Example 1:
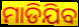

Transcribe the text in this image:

ମାଡିଯିବ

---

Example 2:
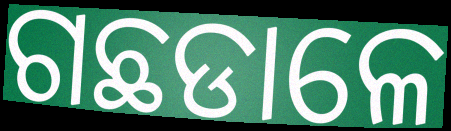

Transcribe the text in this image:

ଗଛଡାଳେ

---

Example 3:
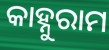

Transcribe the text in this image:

କାହ୍ନୁରାମ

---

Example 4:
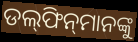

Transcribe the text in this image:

ଡଲ୍‍ଫିନ୍‍ମାନଙ୍କୁ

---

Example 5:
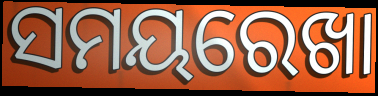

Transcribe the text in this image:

ସମୟରେଖା